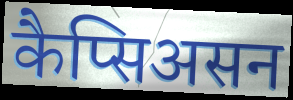
कैप्सिअसन